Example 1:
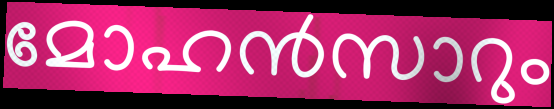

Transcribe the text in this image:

മോഹൻസാറും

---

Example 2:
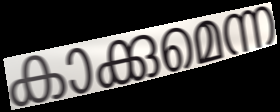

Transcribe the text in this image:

കാക്കുമെന്ന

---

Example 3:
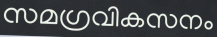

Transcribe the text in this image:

സമഗ്രവികസനം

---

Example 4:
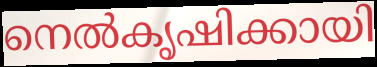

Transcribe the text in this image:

നെൽകൃഷിക്കായി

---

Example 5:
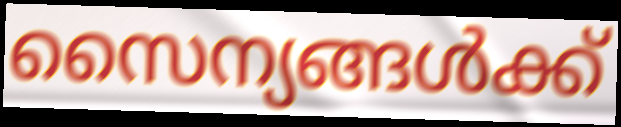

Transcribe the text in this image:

സൈന്യങ്ങൾക്ക്